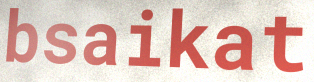
bsaikat